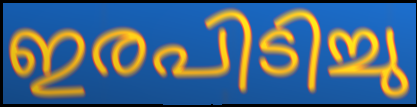
ഇരപിടിച്ചു